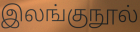
இலங்குநூல்